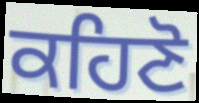
ਕਹਿਣੋ